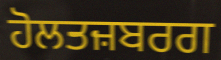
ਹੋਲਤਜ਼ਬਰਗ